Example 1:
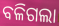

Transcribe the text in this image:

ବଳିଗଲା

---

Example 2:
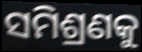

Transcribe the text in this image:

ସମିଶ୍ରଣକୁ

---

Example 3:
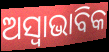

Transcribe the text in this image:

ଅସ୍ଵାଭାବିକ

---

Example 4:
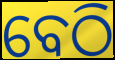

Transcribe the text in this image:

ବେଠି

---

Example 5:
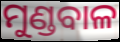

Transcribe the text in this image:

ମୁଣ୍ଡବାଳ